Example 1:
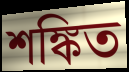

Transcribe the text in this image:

শঙ্কিত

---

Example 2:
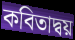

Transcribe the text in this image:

কবিতাদ্বয়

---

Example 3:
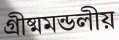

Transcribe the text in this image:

গ্রীষ্মমন্ডলীয়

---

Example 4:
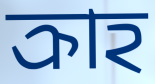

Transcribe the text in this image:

ক্রাহ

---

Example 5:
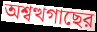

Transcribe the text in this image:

অশ্বত্থগাছের